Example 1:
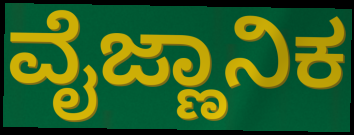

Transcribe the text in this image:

ವೈಜ್ಣಾನಿಕ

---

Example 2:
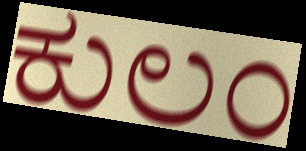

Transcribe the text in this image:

ಕುಲಂ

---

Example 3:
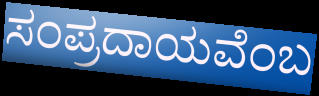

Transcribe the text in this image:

ಸಂಪ್ರದಾಯವೆಂಬ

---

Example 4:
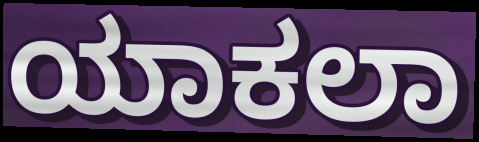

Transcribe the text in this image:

ಯಾಕಲಾ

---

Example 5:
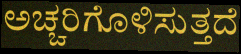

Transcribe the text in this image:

ಅಚ್ಚರಿಗೊಳಿಸುತ್ತದೆ